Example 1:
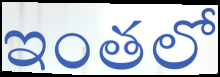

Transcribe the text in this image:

ఇంతలో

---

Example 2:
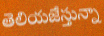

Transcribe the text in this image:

తెలియజేస్తున్నా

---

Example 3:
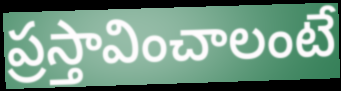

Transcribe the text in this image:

ప్రస్తావించాలంటే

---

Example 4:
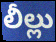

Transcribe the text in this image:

లీల్లు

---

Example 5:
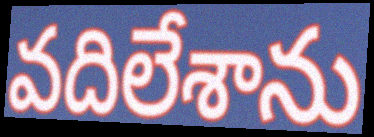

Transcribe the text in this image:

వదిలేశాను